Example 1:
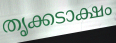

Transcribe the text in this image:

തൃക്കടാക്ഷം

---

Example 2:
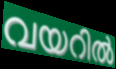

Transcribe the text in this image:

വയറിൽ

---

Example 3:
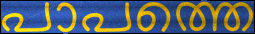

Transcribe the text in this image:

പാപത്തെ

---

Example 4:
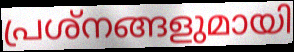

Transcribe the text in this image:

പ്രശ്നങ്ങളുമായി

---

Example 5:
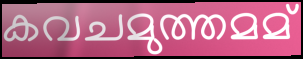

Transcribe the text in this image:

കവചമുത്തമമ്